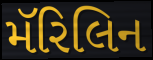
મૅરિલિન